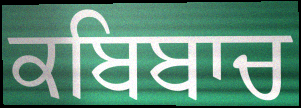
ਕਬਿਬਾਚ